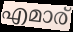
എമാര്